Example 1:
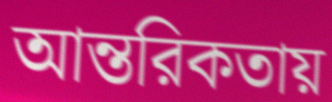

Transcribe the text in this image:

আন্তরিকতায়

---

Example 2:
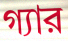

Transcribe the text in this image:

গ্যার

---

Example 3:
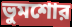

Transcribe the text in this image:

ভুমশোর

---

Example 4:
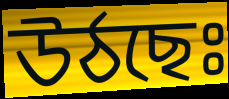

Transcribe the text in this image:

উঠছেঃ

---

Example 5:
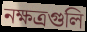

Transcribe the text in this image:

নক্ষত্রগুলি